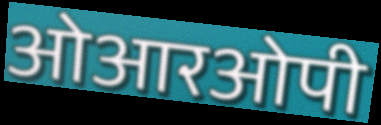
ओआरओपी